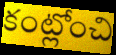
కంట్లోంచి